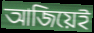
আজিয়েই